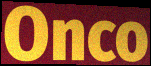
Onco